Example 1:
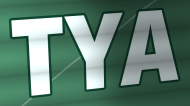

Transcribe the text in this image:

TYA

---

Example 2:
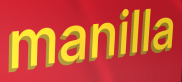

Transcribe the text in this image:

manilla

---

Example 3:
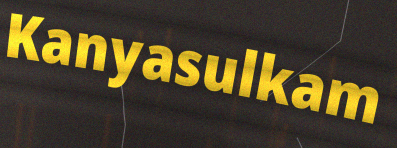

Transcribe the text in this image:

Kanyasulkam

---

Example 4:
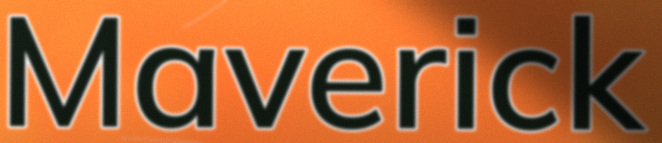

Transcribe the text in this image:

Maverick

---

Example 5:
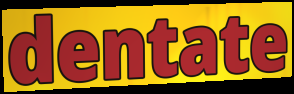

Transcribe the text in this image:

dentate